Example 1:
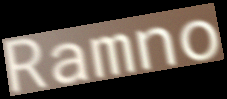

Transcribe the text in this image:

Ramno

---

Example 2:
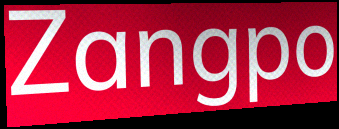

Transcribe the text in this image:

Zangpo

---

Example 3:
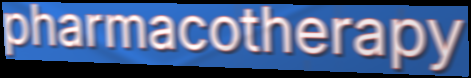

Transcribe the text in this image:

pharmacotherapy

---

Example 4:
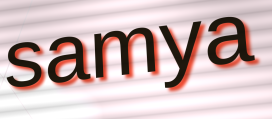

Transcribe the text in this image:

samya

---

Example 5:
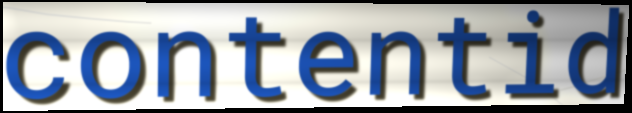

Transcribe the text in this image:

contentid